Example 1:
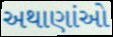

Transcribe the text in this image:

અથાણાંઓ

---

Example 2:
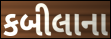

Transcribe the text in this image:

કબીલાના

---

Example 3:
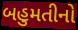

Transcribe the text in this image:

બહુમતીનો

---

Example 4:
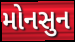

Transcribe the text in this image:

મોનસુન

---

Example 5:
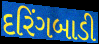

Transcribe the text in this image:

દરિંગબાડી